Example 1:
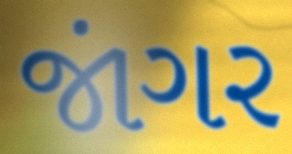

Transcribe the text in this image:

જાંગર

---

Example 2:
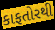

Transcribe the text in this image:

કાફતોરથી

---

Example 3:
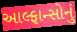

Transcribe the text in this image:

આલ્ફાન્સોનું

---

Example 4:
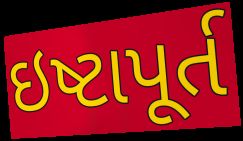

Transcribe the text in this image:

ઇષ્ટાપૂર્ત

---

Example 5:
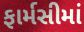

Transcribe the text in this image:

ફાર્મસીમાં